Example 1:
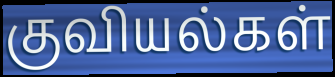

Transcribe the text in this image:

குவியல்கள்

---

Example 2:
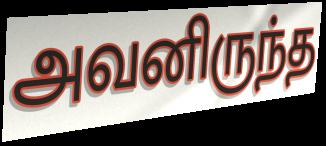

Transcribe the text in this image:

அவனிருந்த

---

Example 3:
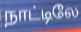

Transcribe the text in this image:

நாட்டிலே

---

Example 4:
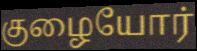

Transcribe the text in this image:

குழையோர்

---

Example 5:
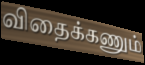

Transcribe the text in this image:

விதைக்கணும்